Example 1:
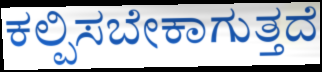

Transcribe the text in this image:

ಕಲ್ಪಿಸಬೇಕಾಗುತ್ತದೆ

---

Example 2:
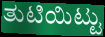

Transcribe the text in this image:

ತುಟಿಯಿಟ್ಟು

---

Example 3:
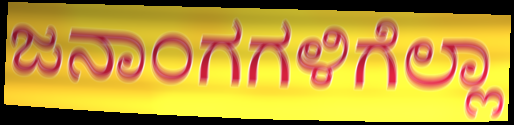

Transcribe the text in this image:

ಜನಾಂಗಗಳಿಗೆಲ್ಲಾ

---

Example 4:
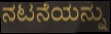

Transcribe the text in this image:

ನಟನೆಯನ್ನು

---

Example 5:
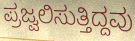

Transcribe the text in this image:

ಪ್ರಜ್ವಲಿಸುತ್ತಿದ್ದವು